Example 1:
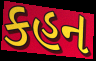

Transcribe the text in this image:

કહન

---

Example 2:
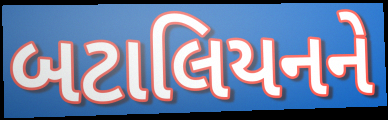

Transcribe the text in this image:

બટાલિયનને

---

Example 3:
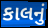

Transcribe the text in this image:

કાલનું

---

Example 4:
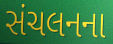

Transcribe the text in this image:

સંચલનના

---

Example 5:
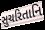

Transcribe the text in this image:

સુચરિતાનિ